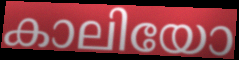
കാലിയോ